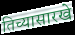
तिच्यासारखे